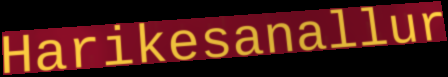
Harikesanallur